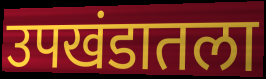
उपखंडातला